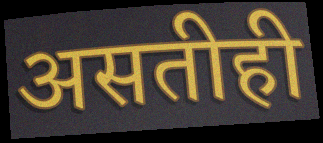
असतीही